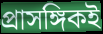
প্রাসঙ্গিকই